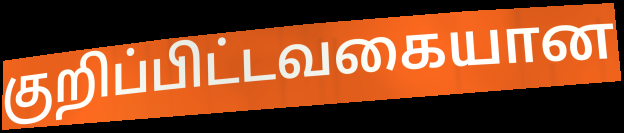
குறிப்பிட்டவகையான